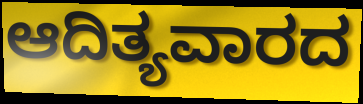
ಆದಿತ್ಯವಾರದ